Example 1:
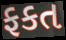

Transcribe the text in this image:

ફકત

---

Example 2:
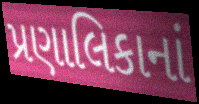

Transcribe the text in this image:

પ્રણાલિકાનાં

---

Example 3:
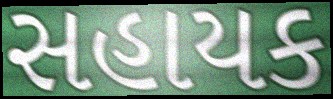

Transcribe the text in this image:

સહાયક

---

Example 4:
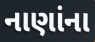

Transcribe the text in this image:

નાણાંના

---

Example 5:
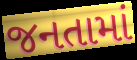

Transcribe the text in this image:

જનતામાં